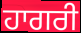
ਹਾਗਰੀ